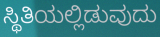
ಸ್ಥಿತಿಯಲ್ಲಿಡುವುದು